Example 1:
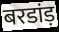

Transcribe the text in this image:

बरडांड़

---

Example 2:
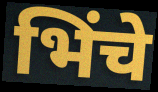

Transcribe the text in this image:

भिंचे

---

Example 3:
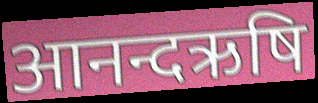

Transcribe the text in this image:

आनन्दऋषि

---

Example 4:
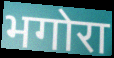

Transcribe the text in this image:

भगोरा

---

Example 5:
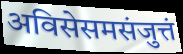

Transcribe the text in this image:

अविसेसमसंजुत्तं